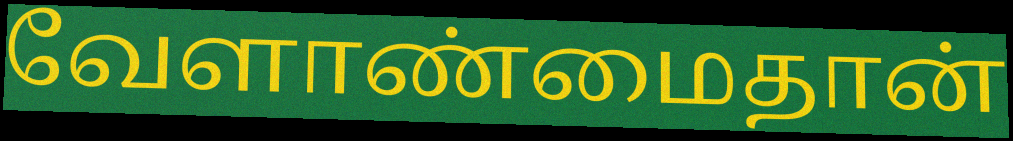
வேளாண்மைதான்